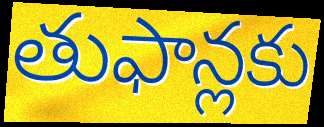
తుఫాన్లకు